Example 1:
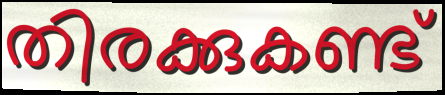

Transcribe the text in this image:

തിരക്കുകണ്ട്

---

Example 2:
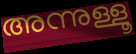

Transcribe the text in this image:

അന്നുള്ളൂ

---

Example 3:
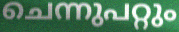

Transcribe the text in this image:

ചെന്നുപറ്റും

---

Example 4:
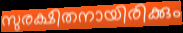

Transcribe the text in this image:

സുരക്ഷിതനായിരിക്കും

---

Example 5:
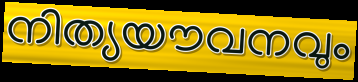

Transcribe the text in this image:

നിത്യയൗവനവും